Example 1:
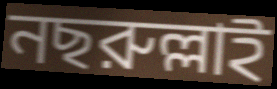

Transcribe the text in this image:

নছৰুল্লাই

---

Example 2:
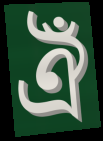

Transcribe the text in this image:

ঐঁ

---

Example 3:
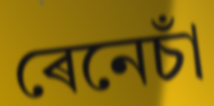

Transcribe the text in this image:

ৰেনেচাঁ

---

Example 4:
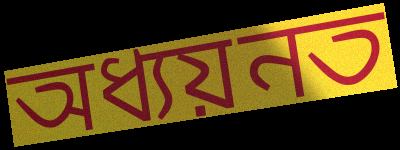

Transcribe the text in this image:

অধ্যয়নত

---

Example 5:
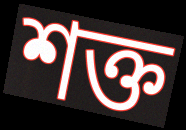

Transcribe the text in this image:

শক্ত